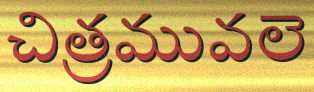
చిత్రమువలె